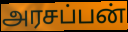
அரசப்பன்